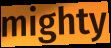
mighty